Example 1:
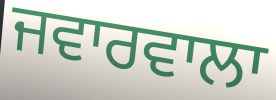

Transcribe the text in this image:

ਜਵਾਰਵਾਲਾ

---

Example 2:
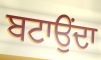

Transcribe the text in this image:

ਬਟਾਉਂਦਾ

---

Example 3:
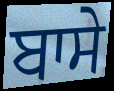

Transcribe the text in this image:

ਬਾਸੇ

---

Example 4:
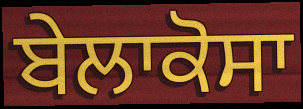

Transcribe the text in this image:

ਬੇਲਾਕੋਸਾ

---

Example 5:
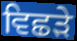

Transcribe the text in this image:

ਵਿਛੜੇ